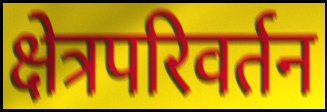
क्षेत्रपरिवर्तन